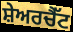
ਸ਼ੇਅਰਚੈੱਟ